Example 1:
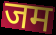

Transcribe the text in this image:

जम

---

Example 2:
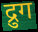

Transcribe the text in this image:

द्रुग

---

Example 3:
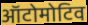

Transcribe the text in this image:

ऑटोमोटिव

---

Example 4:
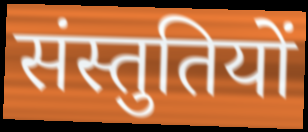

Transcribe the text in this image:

संस्तुतियों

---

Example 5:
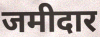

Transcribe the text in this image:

जमीदार